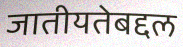
जातीयतेबद्दल